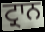
ਟ੍ਰਾਨ